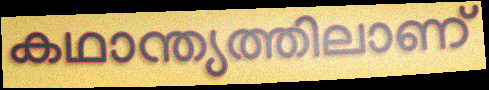
കഥാന്ത്യത്തിലാണ്